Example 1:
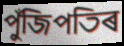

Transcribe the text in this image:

পুঁজিপতিৰ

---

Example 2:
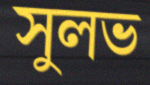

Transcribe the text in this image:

সুলভ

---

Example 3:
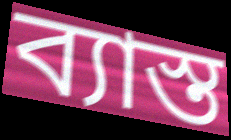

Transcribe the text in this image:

ব্যাস্ত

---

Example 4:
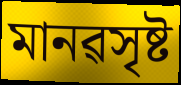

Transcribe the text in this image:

মানৱসৃষ্ট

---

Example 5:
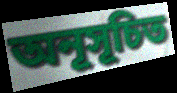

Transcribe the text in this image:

অনূসূচিত